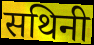
सथिनी